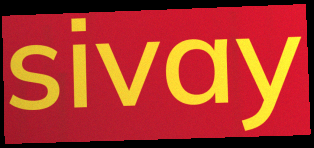
sivay